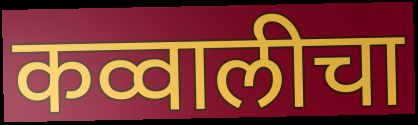
कव्वालीचा